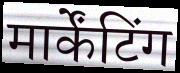
मार्केंटिंग